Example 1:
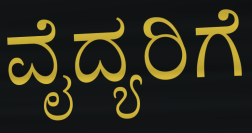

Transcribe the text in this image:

ವೈದ್ಯರಿಗೆ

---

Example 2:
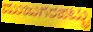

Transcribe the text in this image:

ಮುಜುಗರಪಟ್ಟು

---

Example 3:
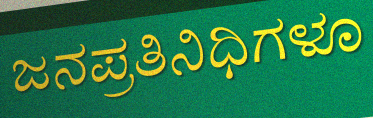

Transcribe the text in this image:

ಜನಪ್ರತಿನಿಧಿಗಳೂ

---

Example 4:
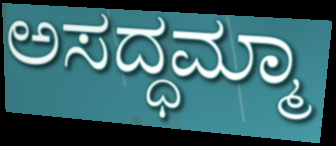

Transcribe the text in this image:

ಅಸದ್ಧಮ್ಮಾ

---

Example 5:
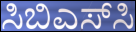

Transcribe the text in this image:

ಸಿಬಿಎಸ್‌ಸಿ